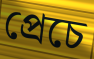
প্ৰেচে